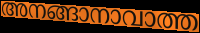
അനങ്ങാനാവാത്ത